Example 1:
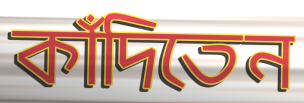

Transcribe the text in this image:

কাঁদিতেন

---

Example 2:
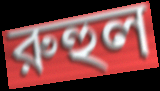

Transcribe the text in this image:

রুহুল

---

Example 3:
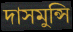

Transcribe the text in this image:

দাসমুন্সি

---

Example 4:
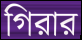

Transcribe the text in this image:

গিরার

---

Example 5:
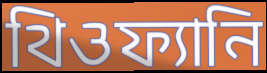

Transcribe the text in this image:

থিওফ্যানি